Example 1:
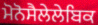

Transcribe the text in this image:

ਮੋਨੋਸੈਲੇਲੇਬਿਕ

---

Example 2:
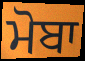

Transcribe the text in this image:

ਮੋਬਾ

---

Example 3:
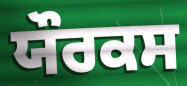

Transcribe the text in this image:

ਯੌਰਕਸ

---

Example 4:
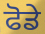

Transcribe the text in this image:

ਫੋਡੇ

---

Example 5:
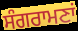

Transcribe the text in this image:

ਸੰਗਰਾਮਣਾਂ